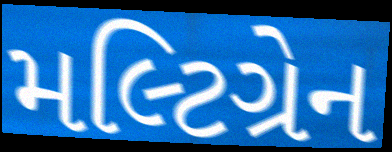
મલ્ટિગ્રેન